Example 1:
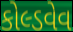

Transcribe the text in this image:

કોલ્ડવેવ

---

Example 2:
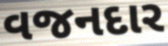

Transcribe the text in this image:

વજનદાર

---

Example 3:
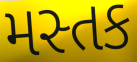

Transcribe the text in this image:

મસ્તક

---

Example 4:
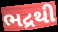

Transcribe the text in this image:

ભદ્રથી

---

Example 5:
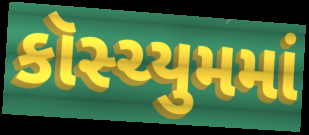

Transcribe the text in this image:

કૉસ્ચ્યુમમાં